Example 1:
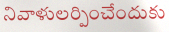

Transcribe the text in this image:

నివాళులర్పించేందుకు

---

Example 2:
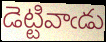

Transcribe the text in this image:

డెట్టివాఁడు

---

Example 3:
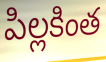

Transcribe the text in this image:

పిల్లకింత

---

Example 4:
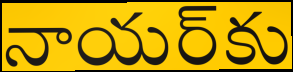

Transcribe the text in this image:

నాయర్‌కు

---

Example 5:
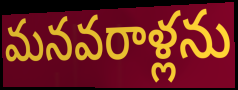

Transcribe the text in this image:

మనవరాళ్లను